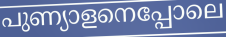
പുണ്യാളനെപ്പോലെ